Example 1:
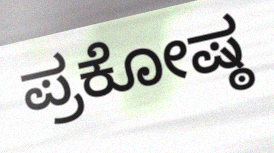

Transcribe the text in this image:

ಪ್ರಕೋಷ್ಠ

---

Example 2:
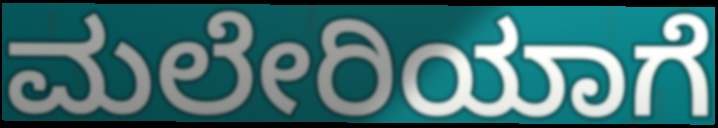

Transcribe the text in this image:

ಮಲೇರಿಯಾಗೆ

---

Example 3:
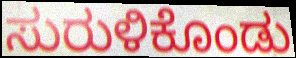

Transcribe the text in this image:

ಸುರುಳಿಕೊಂಡು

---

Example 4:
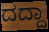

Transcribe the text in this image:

ದದ್ದಾ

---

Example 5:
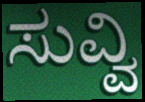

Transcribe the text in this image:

ಸುವ್ವಿ